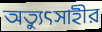
অত্যুৎসাহীর